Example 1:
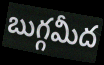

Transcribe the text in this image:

బుగ్గమీద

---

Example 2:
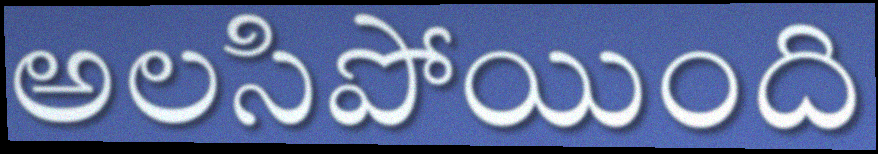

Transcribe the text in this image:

అలసిపోయింది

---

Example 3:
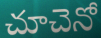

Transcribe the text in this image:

చూచెనో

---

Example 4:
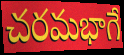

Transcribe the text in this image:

చరమభాగే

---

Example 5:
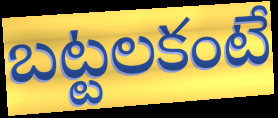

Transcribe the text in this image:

బట్టలకంటే